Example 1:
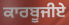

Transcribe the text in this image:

ਕਾਰਬੂਜੀਏ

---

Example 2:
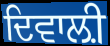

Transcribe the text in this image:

ਦਿਵਾਲ਼ੀ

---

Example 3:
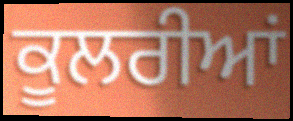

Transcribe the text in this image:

ਕੂਲਰੀਆਂ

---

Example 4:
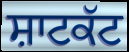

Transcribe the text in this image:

ਸ਼ਾਟਕੱਟ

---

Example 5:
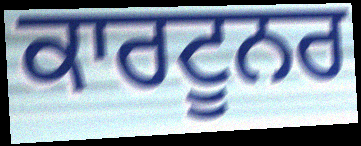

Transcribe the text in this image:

ਕਾਰਟੂਨਰ